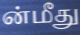
ன்மீது